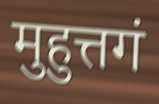
मुहुत्तगं